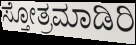
ಸ್ತೋತ್ರಮಾಡಿರಿ